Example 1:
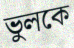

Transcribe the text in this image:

ভুলকে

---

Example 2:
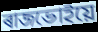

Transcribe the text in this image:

ৰাজভোইয়ে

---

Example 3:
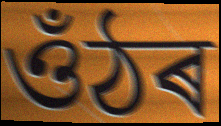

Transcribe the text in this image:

ওঁঠৰ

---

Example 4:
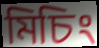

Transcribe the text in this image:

মিচিং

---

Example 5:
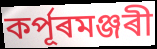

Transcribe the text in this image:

কৰ্পূৰমঞ্জৰী